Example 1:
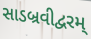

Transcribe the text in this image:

સાડબ્રવીદ્વરમ્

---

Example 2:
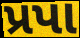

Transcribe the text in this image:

પ્રપા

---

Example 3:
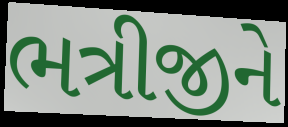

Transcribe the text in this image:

ભત્રીજીને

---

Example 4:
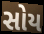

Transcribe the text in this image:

સોય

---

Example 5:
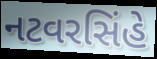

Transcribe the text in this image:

નટવરસિંહે